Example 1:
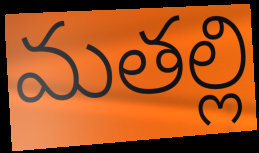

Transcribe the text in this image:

మతల్లి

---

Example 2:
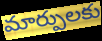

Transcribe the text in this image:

మార్పులకు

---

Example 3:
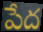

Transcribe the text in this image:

పేద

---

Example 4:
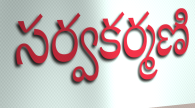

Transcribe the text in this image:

సర్వకర్మణి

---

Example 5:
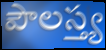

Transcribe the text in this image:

పౌలస్త్య